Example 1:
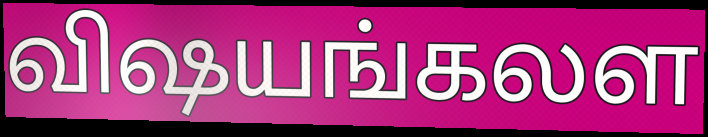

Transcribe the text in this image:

விஷயங்கலள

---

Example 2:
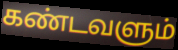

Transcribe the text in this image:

கண்டவளும்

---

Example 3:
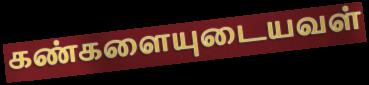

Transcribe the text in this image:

கண்களையுடையவள்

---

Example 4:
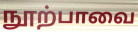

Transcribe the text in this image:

நூற்பாவை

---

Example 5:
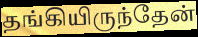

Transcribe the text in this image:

தங்கியிருந்தேன்